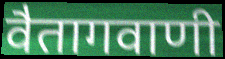
वैतागवाणी